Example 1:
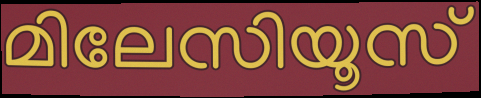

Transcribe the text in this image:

മിലേസിയൂസ്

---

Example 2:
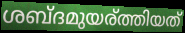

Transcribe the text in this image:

ശബ്ദമുയര്ത്തിയത്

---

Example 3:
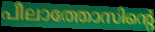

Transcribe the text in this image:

പീലാത്തോസിന്റെ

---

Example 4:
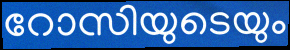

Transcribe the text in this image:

റോസിയുടെയും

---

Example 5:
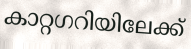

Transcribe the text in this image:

കാറ്റഗറിയിലേക്ക്